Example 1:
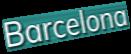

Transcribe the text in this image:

Barcelona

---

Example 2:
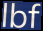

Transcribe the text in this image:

lbf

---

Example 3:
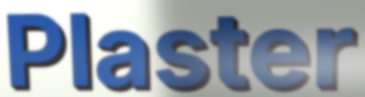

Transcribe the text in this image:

Plaster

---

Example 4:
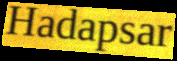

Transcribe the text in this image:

Hadapsar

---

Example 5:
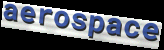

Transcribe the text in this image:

aerospace